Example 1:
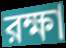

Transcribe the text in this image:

রক্ষা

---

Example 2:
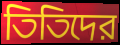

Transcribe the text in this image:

তিতিদের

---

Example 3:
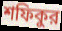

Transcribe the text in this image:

শফিকুর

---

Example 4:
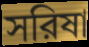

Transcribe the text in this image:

সরিষা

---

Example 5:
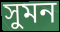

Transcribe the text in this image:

সুমন